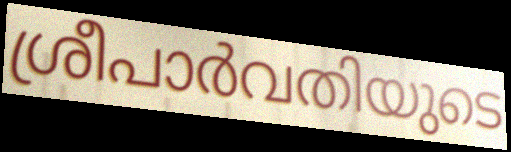
ശ്രീപാർവതിയുടെ